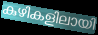
കുഴികളിലായി